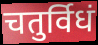
चतुर्विधं